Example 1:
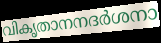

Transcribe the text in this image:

വികൃതാനനദർശനാ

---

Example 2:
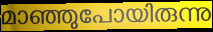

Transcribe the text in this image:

മാഞ്ഞുപോയിരുന്നു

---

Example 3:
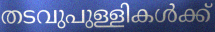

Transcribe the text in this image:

തടവുപുള്ളികൾക്ക്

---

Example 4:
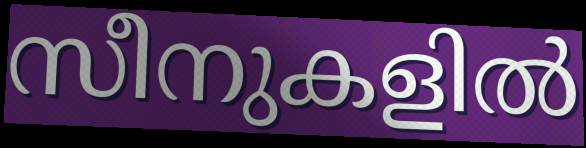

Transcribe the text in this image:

സീനുകളിൽ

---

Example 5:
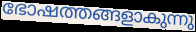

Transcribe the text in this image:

ഭോഷത്തങ്ങളാകുന്നു